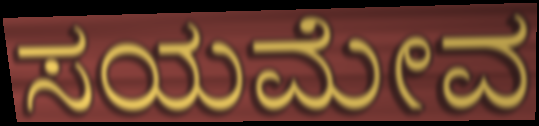
ಸಯಮೇವ